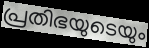
പ്രതിഭയുടെയും